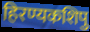
हिरण्यकशिपु